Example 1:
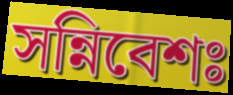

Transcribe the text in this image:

সন্নিবেশঃ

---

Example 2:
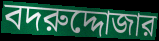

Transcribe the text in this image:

বদরুদ্দোজার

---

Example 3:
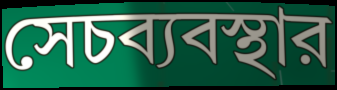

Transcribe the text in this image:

সেচব্যবস্থার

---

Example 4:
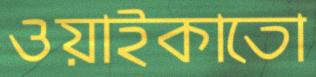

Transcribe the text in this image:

ওয়াইকাতো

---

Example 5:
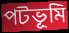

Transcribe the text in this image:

পটভূমি